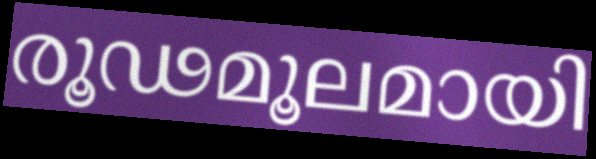
രൂഢമൂലമായി